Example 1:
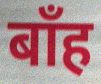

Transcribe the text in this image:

बाँह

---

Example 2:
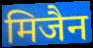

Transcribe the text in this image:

मिजैन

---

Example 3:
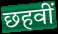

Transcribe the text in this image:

छहवीं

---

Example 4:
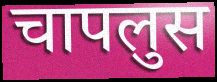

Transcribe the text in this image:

चापलुस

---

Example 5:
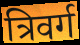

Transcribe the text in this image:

त्रिवर्ग